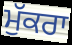
ਮੁੱਕਰਾ